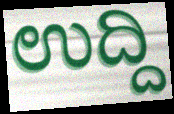
ಉದ್ದಿ